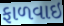
ફાળવાઇ